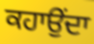
ਕਹਾਉਂਦਾ